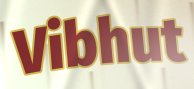
Vibhut